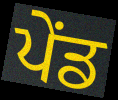
ਪੇਂਡ